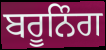
ਬਰੂਨਿੰਗ